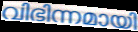
വിഭിന്നമായി